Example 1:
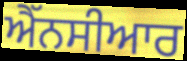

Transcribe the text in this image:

ਐੱਨਸੀਆਰ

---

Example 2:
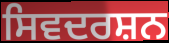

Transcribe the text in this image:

ਸਿਵਦਰਸ਼ਨ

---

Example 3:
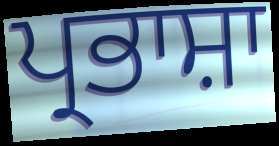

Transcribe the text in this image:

ਪ੍ਰਭਾਸ਼ਾ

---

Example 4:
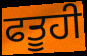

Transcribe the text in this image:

ਫਤੂਹੀ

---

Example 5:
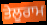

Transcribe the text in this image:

ਤੇਲੂਰਾਮ